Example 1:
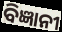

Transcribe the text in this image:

ବିଜ୍ଞାନୀ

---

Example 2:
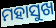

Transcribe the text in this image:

ମହାସୁଖ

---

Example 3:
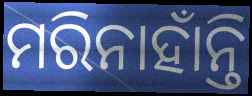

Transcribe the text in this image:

ମରିନାହାଁନ୍ତି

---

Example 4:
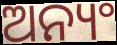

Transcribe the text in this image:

ଅନ୍ୟଂ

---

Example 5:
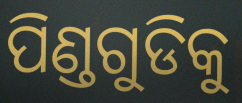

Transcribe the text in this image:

ପିଣ୍ଡଗୁଡିକୁ